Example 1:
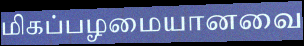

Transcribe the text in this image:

மிகப்பழமையானவை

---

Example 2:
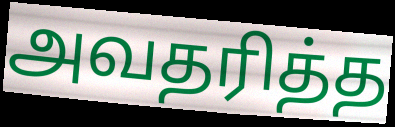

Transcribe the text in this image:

அவதரித்த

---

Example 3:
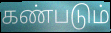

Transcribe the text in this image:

கண்படும்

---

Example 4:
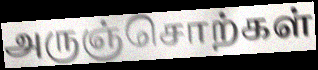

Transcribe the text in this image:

அருஞ்சொற்கள்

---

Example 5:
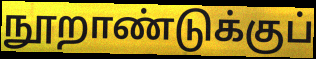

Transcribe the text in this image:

நூறாண்டுக்குப்